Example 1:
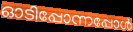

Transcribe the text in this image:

ഓടിപ്പോന്നപ്പോൾ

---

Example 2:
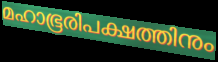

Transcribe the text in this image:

മഹാഭൂരിപക്ഷത്തിനും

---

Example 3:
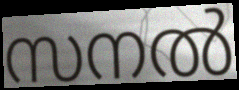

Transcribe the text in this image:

സനൽ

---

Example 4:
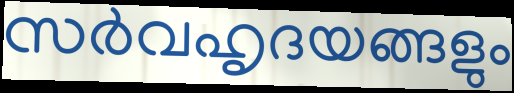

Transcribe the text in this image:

സർവഹൃദയങ്ങളും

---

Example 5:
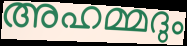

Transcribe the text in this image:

അഹമ്മദും